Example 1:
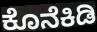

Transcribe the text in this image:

ಕೊನೆಕಿಡಿ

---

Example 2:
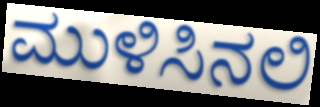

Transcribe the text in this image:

ಮುಳಿಸಿನಲಿ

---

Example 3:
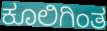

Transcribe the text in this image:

ಕೂಲಿಗಿಂತ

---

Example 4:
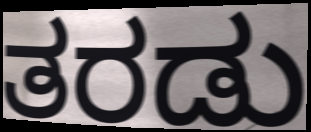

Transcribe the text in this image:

ತರಡು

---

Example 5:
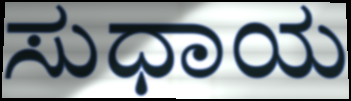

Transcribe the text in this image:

ಸುಧಾಯ